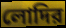
লোদির